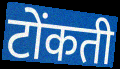
टोंकती